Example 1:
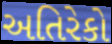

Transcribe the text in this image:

અતિરેકો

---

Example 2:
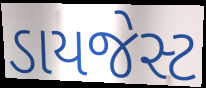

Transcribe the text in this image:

ડાયજેસ્ટ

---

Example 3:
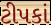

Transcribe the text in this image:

ટીપકાં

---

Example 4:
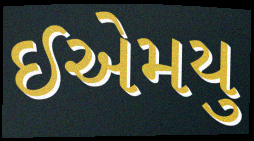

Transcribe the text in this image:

ઈએમયુ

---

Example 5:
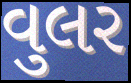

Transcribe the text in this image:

વુલર